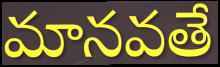
మానవతే